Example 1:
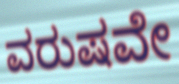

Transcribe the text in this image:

ವರುಷವೇ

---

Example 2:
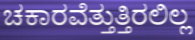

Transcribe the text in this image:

ಚಕಾರವೆತ್ತುತ್ತಿರಲಿಲ್ಲ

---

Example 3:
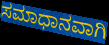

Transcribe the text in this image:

ಸಮಾಧಾನವಾಗಿ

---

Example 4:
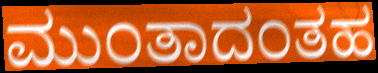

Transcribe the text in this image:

ಮುಂತಾದಂತಹ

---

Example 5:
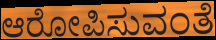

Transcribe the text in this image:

ಆರೋಪಿಸುವಂತೆ